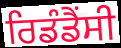
ਰਿਡੰਡੈਂਸੀ